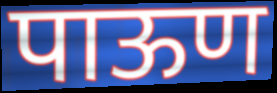
पाऊण